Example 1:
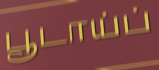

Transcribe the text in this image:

பூடாய்ப்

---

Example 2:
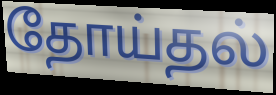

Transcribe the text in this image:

தோய்தல்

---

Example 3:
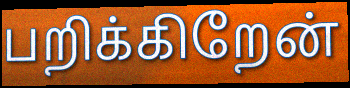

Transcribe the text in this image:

பறிக்கிறேன்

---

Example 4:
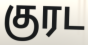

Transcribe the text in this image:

குரட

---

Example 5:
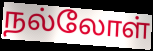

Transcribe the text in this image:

நல்லோள்